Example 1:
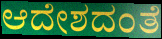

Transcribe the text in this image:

ಆದೇಶದಂತೆ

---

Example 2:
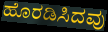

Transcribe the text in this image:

ಹೊರಡಿಸಿದವು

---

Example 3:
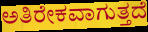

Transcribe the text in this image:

ಅತಿರೇಕವಾಗುತ್ತದೆ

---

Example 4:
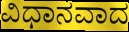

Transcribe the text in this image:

ವಿಧಾನವಾದ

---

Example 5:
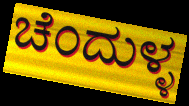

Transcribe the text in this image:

ಚೆಂದುಳ್ಳ